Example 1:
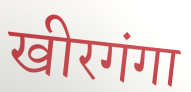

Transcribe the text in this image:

खीरगंगा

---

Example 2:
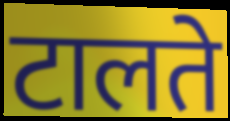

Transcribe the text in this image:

टालते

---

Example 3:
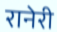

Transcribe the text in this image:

रानेरी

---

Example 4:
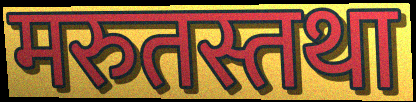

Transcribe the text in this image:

मरुतस्तथा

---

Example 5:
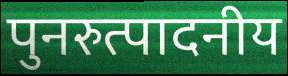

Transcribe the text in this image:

पुनरुत्पादनीय